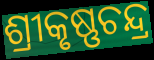
ଶ୍ରୀକୃଷ୍ଣଚନ୍ଦ୍ର